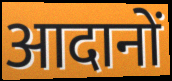
आदानों